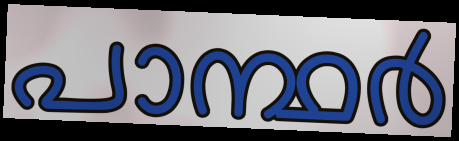
പാന്ഥർ